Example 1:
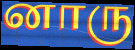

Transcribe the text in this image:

னாரு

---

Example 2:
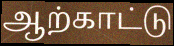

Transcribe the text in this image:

ஆற்காட்டு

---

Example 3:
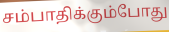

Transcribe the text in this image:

சம்பாதிக்கும்போது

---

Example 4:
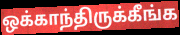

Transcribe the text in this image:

ஒக்காந்திருக்கீங்க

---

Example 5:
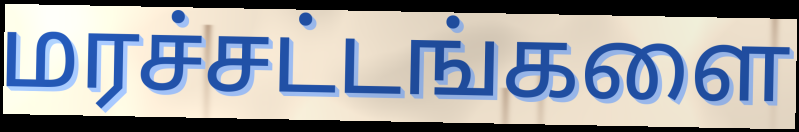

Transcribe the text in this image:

மரச்சட்டங்களை